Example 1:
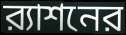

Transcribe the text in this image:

র‍্যাশনের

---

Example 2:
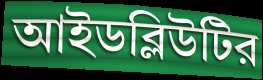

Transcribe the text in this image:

আইডব্লিউটির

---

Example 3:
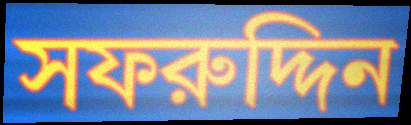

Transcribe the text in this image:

সফরুদ্দিন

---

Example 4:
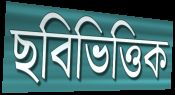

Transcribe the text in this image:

ছবিভিত্তিক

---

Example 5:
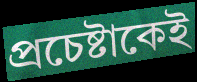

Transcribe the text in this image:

প্রচেষ্টাকেই